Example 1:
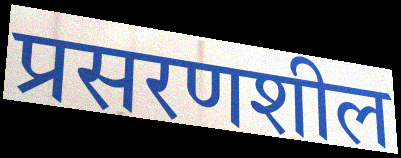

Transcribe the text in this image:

प्रसरणशील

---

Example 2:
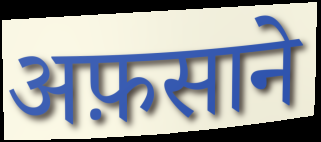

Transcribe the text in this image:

अफ़साने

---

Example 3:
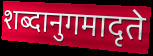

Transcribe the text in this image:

शब्दानुगमादृते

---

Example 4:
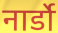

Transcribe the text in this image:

नार्डो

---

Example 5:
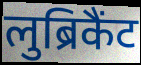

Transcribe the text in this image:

लुब्रिकैंट